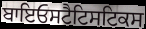
ਬਾਇਓਸਟੈਟਿਸਟਿਕਸ